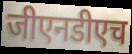
जीएनडीएच